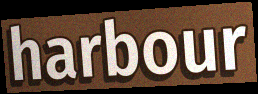
harbour